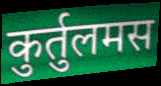
कुर्तुलमस